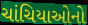
ચાંચિયાઓનો